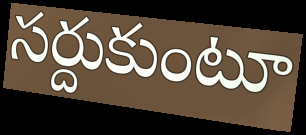
సర్దుకుంటూ